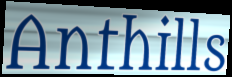
Anthills